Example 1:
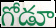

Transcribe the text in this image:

గోడూ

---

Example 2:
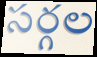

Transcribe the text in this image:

సర్గల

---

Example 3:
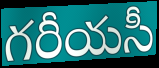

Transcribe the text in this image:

గరీయసీ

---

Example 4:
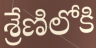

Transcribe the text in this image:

శ్రేణిలోకి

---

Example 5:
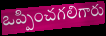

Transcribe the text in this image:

ఒప్పించగలిగారు